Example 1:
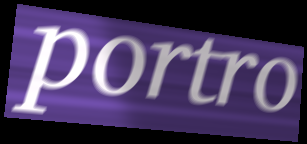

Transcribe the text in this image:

portro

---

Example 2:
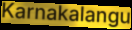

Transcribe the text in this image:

Karnakalangu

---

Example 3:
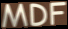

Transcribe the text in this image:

MDF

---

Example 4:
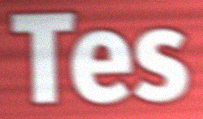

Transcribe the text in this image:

Tes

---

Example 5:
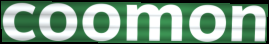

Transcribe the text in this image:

coomon